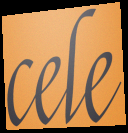
cele